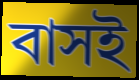
বাসই